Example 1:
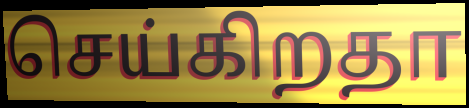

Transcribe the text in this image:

செய்கிறதா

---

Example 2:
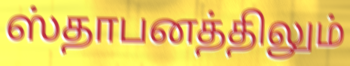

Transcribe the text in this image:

ஸ்தாபனத்திலும்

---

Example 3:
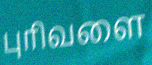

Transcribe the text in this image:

புரிவளை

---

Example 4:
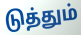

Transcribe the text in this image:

டுத்தும்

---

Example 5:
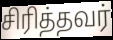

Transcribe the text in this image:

சிரித்தவர்